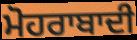
ਮੋਹਰਾਬਾਦੀ